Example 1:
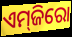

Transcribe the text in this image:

ଏମ୍‌ଜିରୋ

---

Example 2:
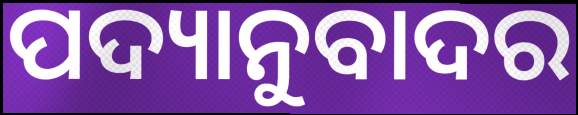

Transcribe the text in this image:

ପଦ୍ୟାନୁବାଦର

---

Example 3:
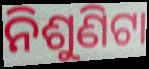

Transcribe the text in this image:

ନିଶୁଣିଟା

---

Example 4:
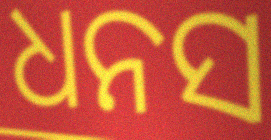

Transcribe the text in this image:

ଧନସ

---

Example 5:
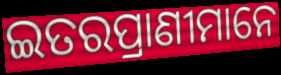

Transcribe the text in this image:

ଇତରପ୍ରାଣୀମାନେ